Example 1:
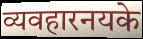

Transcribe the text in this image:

व्यवहारनयके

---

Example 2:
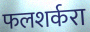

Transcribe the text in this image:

फलशर्करा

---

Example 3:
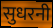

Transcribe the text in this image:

सुधरनी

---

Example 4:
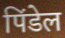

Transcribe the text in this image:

पिंडेल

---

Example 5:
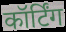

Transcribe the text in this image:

कॉर्टिंग